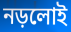
নড়লোই